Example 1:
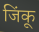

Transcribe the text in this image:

जिंकू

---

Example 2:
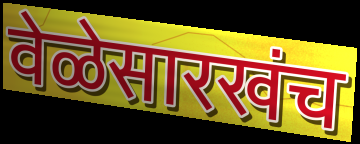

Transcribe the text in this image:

वेळेसारखंच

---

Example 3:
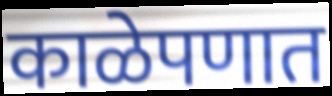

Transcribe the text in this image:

काळेपणात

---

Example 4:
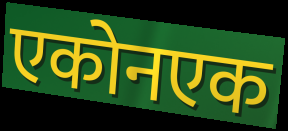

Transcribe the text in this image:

एकोनएक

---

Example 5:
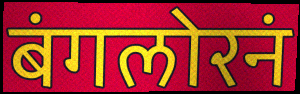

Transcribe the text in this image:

बंगलोरनं